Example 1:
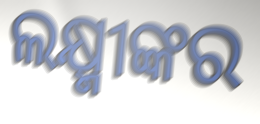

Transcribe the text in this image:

ଲକ୍ଷ୍ମୀଙ୍କର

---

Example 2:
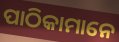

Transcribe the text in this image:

ପାଠିକାମାନେ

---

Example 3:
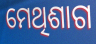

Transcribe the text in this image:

ମେଥିଶାଗ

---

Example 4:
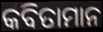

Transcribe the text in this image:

କବିତାମାନ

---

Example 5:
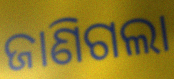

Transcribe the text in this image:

ଜାଣିଗଲା